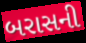
બરાસની